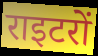
राइटरों